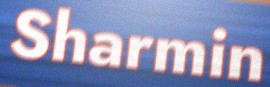
Sharmin